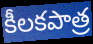
కీలకపాత్ర